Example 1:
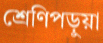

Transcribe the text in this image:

শ্রেণিপড়ুয়া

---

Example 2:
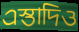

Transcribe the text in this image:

এস্তাদিও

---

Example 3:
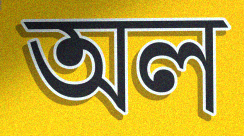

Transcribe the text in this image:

অল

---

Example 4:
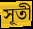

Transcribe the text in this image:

সূতী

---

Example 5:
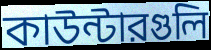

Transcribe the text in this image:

কাউন্টারগুলি